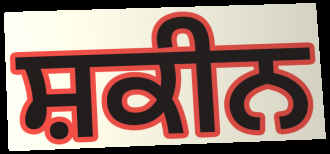
ਸ਼ਕੀਨ